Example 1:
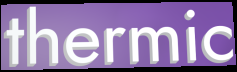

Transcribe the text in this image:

thermic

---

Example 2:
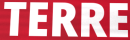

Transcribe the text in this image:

TERRE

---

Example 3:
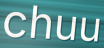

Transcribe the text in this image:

chuu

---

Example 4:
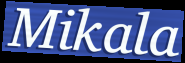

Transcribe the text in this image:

Mikala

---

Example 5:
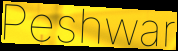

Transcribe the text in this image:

Peshwar